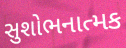
સુશોભનાત્મક